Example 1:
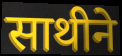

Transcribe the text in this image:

साथीने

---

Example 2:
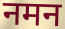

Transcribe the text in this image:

नमन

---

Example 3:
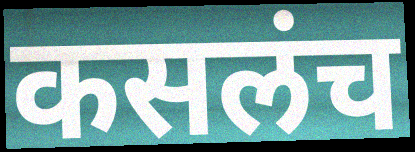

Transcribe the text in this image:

कसलंच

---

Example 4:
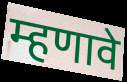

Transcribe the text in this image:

म्हणावे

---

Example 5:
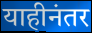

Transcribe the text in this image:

याहीनंतर